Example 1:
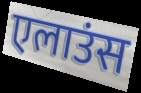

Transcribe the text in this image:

एलाउंस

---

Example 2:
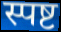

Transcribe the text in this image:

स्पष्ट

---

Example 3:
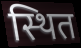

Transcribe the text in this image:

स्थित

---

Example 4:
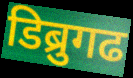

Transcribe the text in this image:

डिब्रुगढ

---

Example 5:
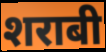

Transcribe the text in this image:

शराबी